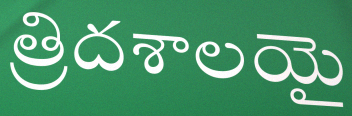
త్రిదశాలయై